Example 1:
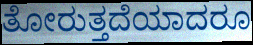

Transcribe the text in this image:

ತೋರುತ್ತದೆಯಾದರೂ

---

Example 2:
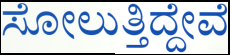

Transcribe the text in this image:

ಸೋಲುತ್ತಿದ್ದೇವೆ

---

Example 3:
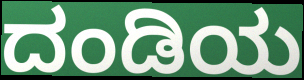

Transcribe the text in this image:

ದಂಡಿಯ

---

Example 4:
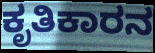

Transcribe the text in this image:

ಕೃತಿಕಾರನ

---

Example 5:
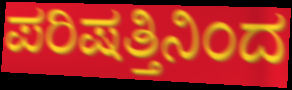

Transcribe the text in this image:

ಪರಿಷತ್ತಿನಿಂದ